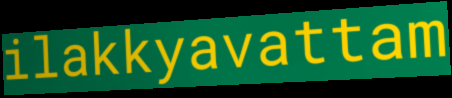
ilakkyavattam